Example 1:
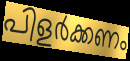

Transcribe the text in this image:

പിളർക്കണം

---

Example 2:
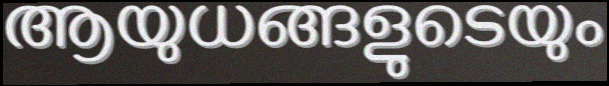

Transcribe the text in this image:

ആയുധങ്ങളുടെയും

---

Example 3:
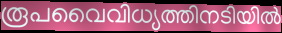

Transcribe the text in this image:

രൂപവൈവിധ്യത്തിനടിയിൽ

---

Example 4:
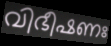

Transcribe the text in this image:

വിഭീഷണഃ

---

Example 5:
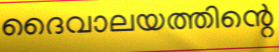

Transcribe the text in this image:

ദൈവാലയത്തിന്റെ